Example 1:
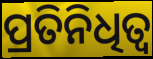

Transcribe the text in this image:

ପ୍ରତିନିଧିତ୍ବ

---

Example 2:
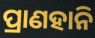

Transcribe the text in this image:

ପ୍ରାଣହାନି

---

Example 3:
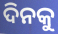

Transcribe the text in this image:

ଦିନକୁ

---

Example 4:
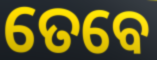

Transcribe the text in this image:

ତେବେ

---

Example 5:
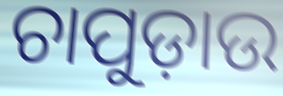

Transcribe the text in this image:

ଚାପୁଡ଼ାଉ